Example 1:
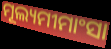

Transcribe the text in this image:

ମୂଲ୍ୟମୀମାଂସା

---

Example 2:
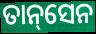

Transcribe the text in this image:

ତାନ୍‌ସେନ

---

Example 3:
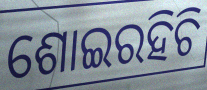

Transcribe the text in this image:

ଶୋଇରହିଚି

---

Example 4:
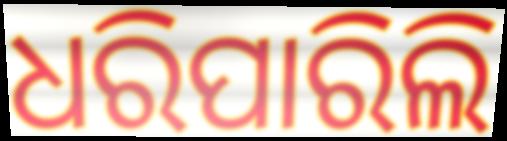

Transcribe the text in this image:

ଧରିପାରିଲି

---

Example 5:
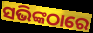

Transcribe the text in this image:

ସଭିଙ୍କଠାରେ